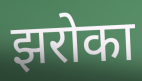
झरोका